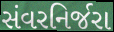
સંવરનિર્જરા